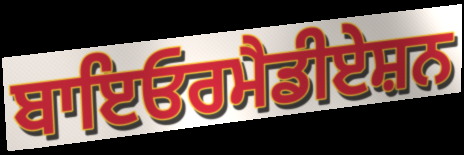
ਬਾਇਓਰਮੈਡੀਏਸ਼ਨ